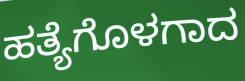
ಹತ್ಯೆಗೊಳಗಾದ